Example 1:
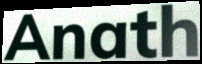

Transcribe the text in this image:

Anath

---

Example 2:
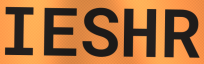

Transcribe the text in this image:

IESHR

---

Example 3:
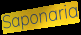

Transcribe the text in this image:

Saponaria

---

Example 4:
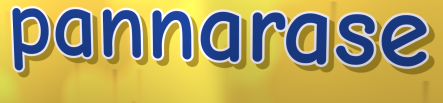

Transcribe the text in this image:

pannarase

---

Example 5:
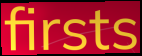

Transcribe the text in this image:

firsts